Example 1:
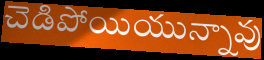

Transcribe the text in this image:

చెడిపోయియున్నావు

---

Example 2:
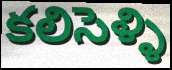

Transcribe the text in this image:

కలిసెళ్ళి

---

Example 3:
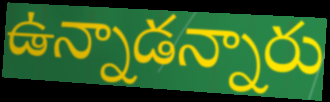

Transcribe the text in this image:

ఉన్నాడన్నారు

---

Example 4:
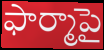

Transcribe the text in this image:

ఫార్మాపై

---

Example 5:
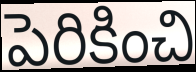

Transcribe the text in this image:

పెరికించి